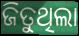
ଜିତୁଥିଲା